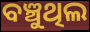
ବଞ୍ଚୁଥିଲ